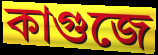
কাগুজে